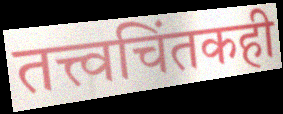
तत्त्वचिंतकही